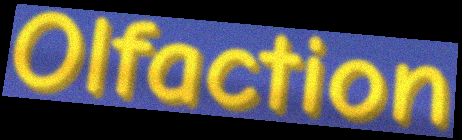
Olfaction